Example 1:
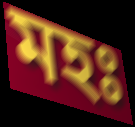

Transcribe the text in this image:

মহঃ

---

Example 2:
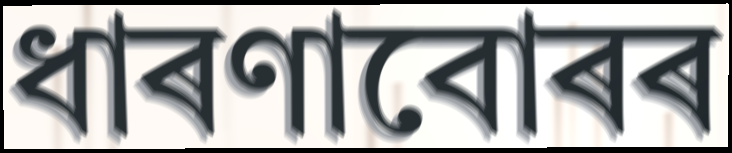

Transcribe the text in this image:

ধাৰণাবোৰৰ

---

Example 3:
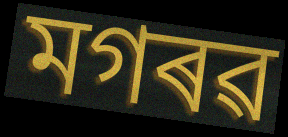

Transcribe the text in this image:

মগৰৱ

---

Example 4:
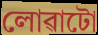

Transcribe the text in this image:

লোৱাটো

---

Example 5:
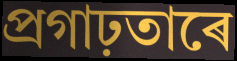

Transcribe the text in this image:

প্ৰগাঢ়তাৰে